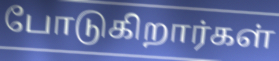
போடுகிறார்கள்